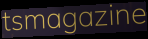
tsmagazine